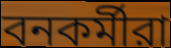
বনকর্মীরা